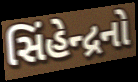
સિંહેન્દ્રનો